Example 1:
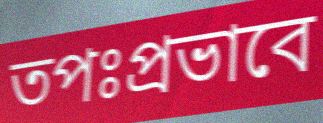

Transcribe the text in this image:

তপঃপ্রভাবে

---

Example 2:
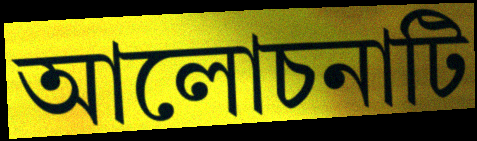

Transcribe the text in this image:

আলোচনাটি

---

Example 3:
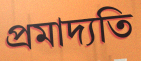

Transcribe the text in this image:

প্রমাদ্যতি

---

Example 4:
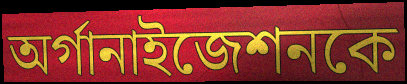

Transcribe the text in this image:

অর্গানাইজেশনকে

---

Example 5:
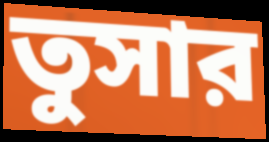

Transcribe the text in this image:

তুসার